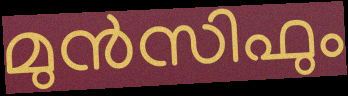
മുൻസിഫും